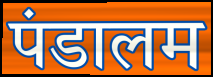
पंडालम